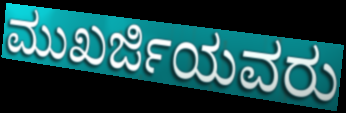
ಮುಖರ್ಜಿಯವರು